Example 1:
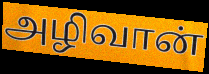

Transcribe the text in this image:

அழிவான்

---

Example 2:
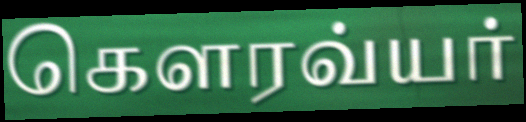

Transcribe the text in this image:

கௌரவ்யர்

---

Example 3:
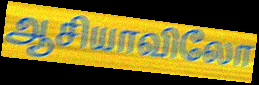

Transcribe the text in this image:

ஆசியாவிலோ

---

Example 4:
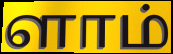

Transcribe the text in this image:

ளாம்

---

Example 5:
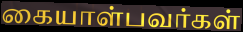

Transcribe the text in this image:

கையாள்பவர்கள்